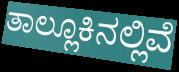
ತಾಲ್ಲೂಕಿನಲ್ಲಿವೆ